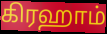
கிரஹாம்